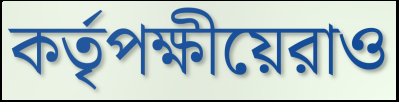
কর্তৃপক্ষীয়েরাও